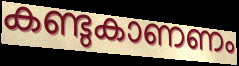
കണ്ടുകാണണം